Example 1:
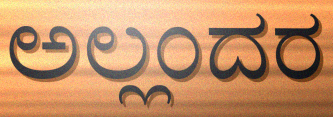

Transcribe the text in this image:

ಅಲ್ಲಂದರ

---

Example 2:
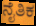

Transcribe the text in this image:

ನೈತಿಕ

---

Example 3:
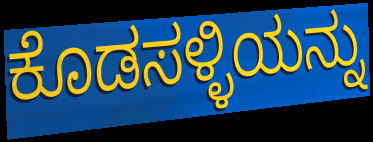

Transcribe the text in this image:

ಕೊಡಸಳ್ಳಿಯನ್ನು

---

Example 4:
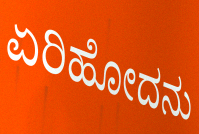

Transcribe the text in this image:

ಏರಿಹೋದನು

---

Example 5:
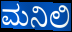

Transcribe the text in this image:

ಮನಿಲಿ